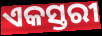
ଏକସ୍ତରୀ